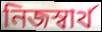
নিজস্বার্থ